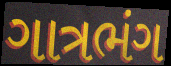
ગાત્રભંગ